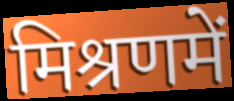
मिश्रणमें